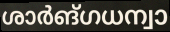
ശാർങ്ഗധന്വാ